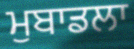
ਮੁਬਾਡਲਾ